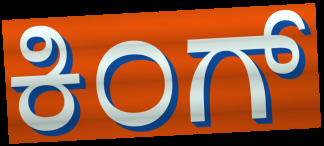
ಕಿಂಗ್